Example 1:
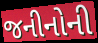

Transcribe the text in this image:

જનીનોની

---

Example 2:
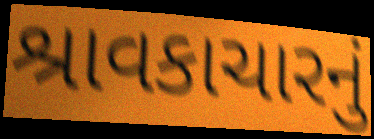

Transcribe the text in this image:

શ્રાવકાચારનું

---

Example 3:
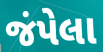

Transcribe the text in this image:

જંપેલા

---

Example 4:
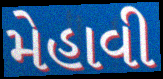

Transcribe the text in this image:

મેહાવી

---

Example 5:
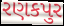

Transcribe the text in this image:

રણકપુર